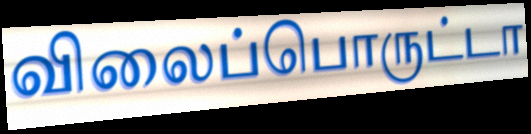
விலைப்பொருட்டா